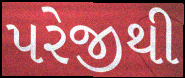
પરેજીથી